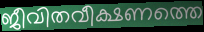
ജീവിതവീക്ഷണത്തെ